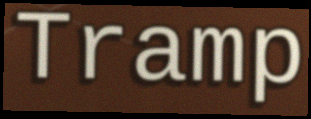
Tramp